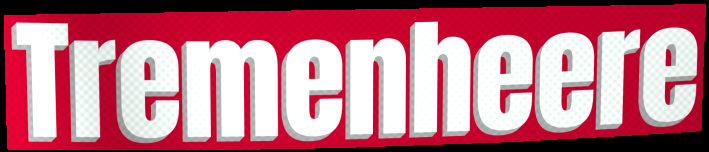
Tremenheere